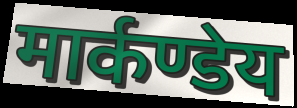
मार्कण्डेय